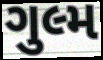
ગુલ્મ